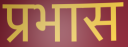
प्रभास